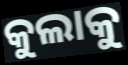
କୁଲାକୁ